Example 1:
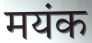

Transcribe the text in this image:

मयंक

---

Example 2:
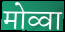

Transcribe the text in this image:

मोव्वा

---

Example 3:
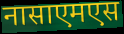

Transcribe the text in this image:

नासाएमएस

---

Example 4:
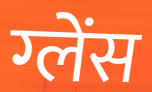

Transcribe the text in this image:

ग्लेंस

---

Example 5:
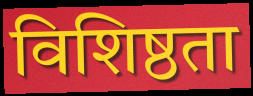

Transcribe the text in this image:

विशिष्ठता